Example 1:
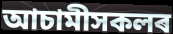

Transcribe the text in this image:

আচামীসকলৰ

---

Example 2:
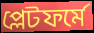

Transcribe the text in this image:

প্লেটফৰ্মে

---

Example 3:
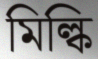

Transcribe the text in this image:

মিল্কি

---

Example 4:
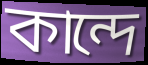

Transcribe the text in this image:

কান্দে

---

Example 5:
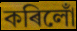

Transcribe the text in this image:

কৰিলোঁ